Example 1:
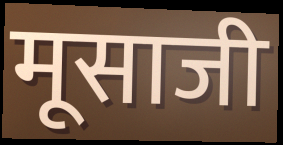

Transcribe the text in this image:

मूसाजी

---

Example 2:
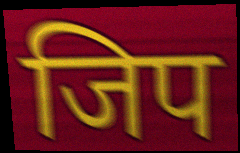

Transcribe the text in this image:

जिप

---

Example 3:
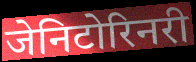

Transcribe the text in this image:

जेनिटोरिनरी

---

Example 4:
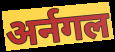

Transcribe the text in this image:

अर्नगल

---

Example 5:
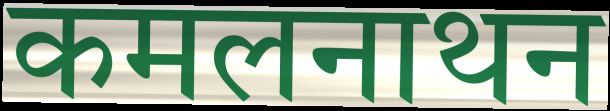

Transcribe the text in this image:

कमलनाथन